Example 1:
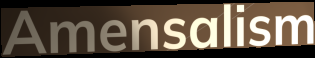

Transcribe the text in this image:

Amensalism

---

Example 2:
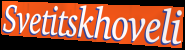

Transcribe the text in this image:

Svetitskhoveli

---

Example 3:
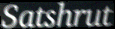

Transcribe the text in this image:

Satshrut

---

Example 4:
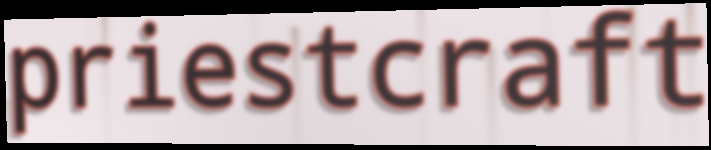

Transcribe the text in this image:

priestcraft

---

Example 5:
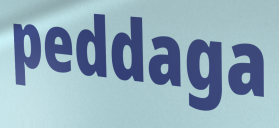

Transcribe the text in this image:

peddaga